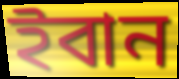
ইবান